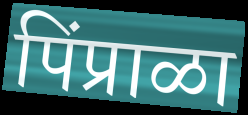
पिंप्राळा